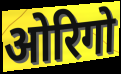
ओरिगो